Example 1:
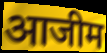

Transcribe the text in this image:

आजीम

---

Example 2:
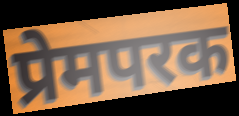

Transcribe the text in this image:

प्रेमपरक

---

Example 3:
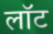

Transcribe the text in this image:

लॉट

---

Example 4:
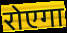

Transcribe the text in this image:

रोएगा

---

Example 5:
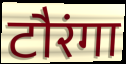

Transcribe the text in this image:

टौरंगा